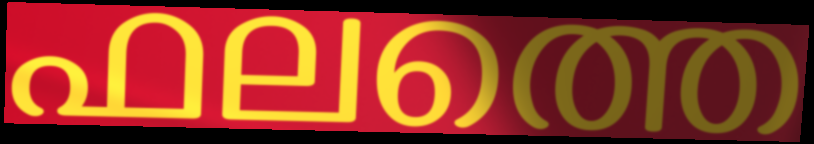
ഫലത്തെ